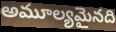
అమూల్యమైనది